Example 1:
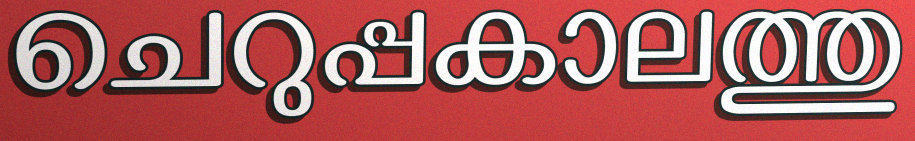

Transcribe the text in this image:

ചെറുപ്പകാലത്തു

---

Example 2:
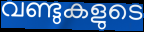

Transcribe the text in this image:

വണ്ടുകളുടെ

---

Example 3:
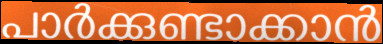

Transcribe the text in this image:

പാർക്കുണ്ടാക്കാൻ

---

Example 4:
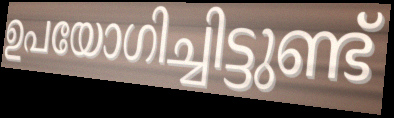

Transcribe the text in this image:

ഉപയോഗിച്ചിട്ടുണ്ട്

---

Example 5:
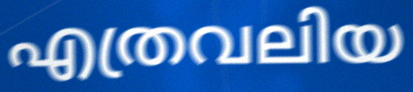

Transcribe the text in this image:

എത്രവലിയ